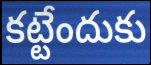
కట్టేందుకు